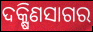
ଦକ୍ଷିଣସାଗର